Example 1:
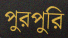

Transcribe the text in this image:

পুরপুরি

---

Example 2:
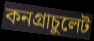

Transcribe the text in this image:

কনগ্রাচুলেট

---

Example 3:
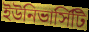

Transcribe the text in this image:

ইউনিভার্সিটি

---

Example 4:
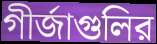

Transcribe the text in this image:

গীর্জাগুলির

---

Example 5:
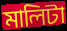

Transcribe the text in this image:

মালিটা